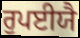
ਰੁਪਈਯੈ